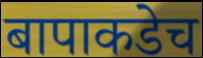
बापाकडेच